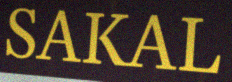
SAKAL